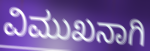
ವಿಮುಖನಾಗಿ